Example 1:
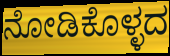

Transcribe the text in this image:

ನೋಡಿಕೊಳ್ಳದ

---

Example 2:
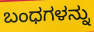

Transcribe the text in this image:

ಬಂಧಗಳನ್ನು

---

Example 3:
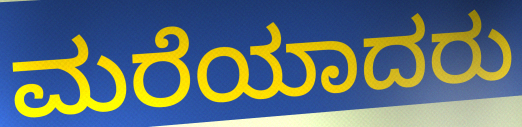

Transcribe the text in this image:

ಮರೆಯಾದರು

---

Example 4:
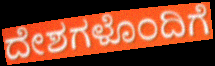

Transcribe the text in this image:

ದೇಶಗಳೊಂದಿಗೆ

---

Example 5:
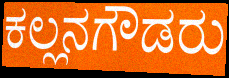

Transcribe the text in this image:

ಕಲ್ಲನಗೌಡರು